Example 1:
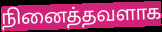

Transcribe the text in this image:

நினைத்தவளாக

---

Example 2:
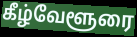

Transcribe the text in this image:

கீழ்வேளூரை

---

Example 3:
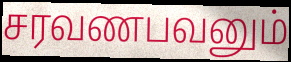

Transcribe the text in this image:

சரவணபவனும்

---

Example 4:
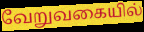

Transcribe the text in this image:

வேறுவகையில்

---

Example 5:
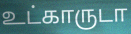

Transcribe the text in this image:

உட்காருடா